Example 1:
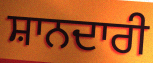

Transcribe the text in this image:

ਸ਼ਾਨਦਾਰੀ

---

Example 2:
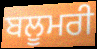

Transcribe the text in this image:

ਬਲੂਮਰੀ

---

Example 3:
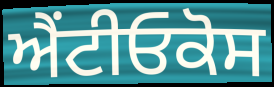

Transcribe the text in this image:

ਐਂਟੀਓਕੋਸ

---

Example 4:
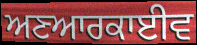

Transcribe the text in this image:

ਅਣਆਰਕਾਈਵ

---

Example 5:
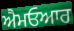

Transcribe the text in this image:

ਐਮਓਆਰ